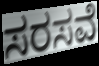
ಸರಸವೆ